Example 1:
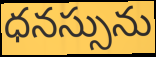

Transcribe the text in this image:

ధనస్సును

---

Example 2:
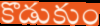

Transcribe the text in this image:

కొడుకుం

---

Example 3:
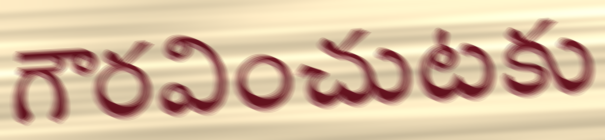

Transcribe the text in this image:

గౌరవించుటకు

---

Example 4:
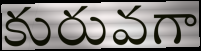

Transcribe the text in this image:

కురువగా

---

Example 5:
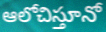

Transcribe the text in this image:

ఆలోచిస్తూనో